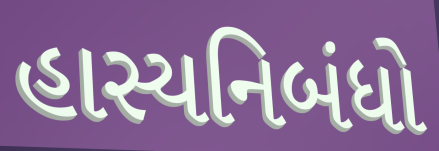
હાસ્યનિબંધો